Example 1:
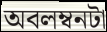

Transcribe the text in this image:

অবলম্বনটা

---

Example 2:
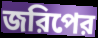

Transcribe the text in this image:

জরিপের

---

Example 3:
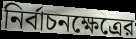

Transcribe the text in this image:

নির্বাচনক্ষেত্রের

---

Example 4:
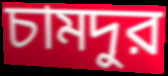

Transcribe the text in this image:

চামদুর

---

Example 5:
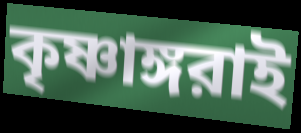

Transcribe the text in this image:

কৃষ্ণাঙ্গরাই